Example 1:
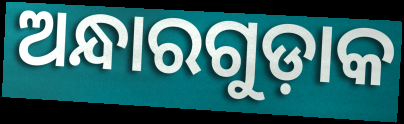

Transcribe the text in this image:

ଅନ୍ଧାରଗୁଡ଼ାକ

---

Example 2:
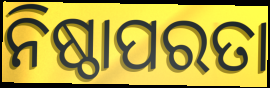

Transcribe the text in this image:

ନିଷ୍ଠାପରତା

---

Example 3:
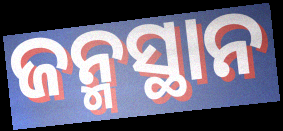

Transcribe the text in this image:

ଜନ୍ମସ୍ଥାନ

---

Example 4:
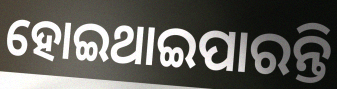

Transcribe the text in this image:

ହୋଇଥାଇପାରନ୍ତି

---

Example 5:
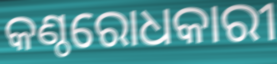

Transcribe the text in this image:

କଣ୍ଠରୋଧକାରୀ